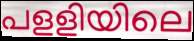
പളളിയിലെ